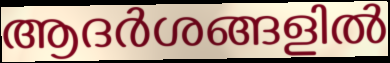
ആദർശങ്ങളിൽ